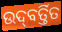
ଉଦ୍‌ବର୍ତ୍ତିତ